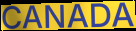
CANADA